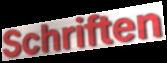
Schriften